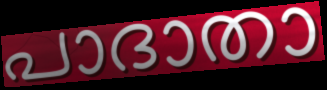
പാദാതാ